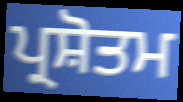
ਪ੍ਰਸ਼ੋਤਮ